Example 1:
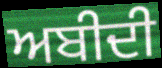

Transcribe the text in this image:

ਅਬੀਦੀ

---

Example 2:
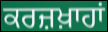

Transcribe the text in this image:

ਕਰਜ਼ਖ਼ਾਹਾਂ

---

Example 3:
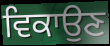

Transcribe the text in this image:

ਵਿਕਾਉਣ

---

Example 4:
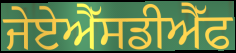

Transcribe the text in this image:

ਜੇਏਐੱਸਡੀਐੱਫ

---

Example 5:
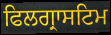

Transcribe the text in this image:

ਫਿਲਗ੍ਰਾਸਟਿਮ